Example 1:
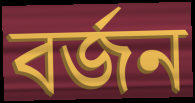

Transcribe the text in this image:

বর্জন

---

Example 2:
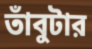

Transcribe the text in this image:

তাঁবুটার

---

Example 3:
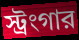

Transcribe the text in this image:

স্ট্রংগার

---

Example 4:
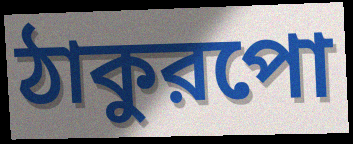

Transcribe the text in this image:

ঠাকুরপো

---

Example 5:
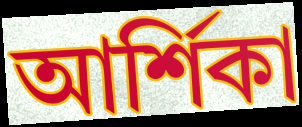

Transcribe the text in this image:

আর্শিকা